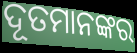
ଦୂତମାନଙ୍କର